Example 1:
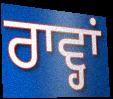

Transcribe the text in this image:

ਰਾਵ੍ਹਾਂ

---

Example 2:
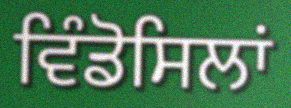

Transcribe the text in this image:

ਵਿੰਡੋਸਿਲਾਂ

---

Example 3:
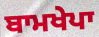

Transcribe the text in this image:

ਬਾਮਖੇਪਾ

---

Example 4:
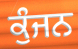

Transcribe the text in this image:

ਕੁੰਜਨ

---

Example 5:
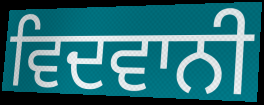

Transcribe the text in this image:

ਵਿਦਵਾਨੀ